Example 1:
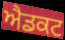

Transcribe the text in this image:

ਐਡਕਟ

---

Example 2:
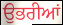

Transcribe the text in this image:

ਉਭਰੀਆਂ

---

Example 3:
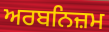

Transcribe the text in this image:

ਅਰਬਨਿਜ਼ਮ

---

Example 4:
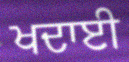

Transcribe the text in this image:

ਖਦਾਈ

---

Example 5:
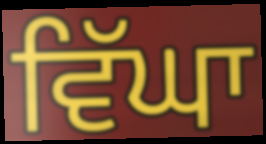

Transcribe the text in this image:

ਵਿੱਘਾ